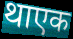
थाएक